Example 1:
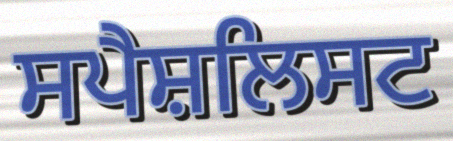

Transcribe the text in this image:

ਸਪੈਸ਼ਲਿਸਟ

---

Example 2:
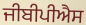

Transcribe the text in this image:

ਜੀਬੀਪੀਐਸ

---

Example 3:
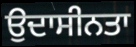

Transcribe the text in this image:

ਉਦਾਸੀਨਤਾ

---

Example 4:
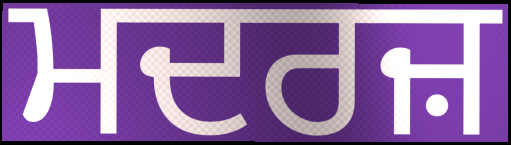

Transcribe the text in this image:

ਮਦਰਜ਼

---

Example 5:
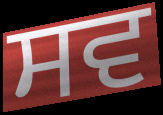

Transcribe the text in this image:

ਸਵ